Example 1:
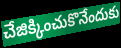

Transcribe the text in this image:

చేజిక్కించుకొనేందుకు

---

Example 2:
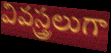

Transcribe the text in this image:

వివస్త్రలుగా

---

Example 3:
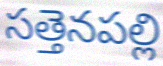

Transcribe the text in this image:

సత్తెనపల్లి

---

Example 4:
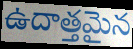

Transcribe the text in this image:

ఉదాత్తమైన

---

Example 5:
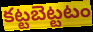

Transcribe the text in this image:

కట్టబెట్టటం